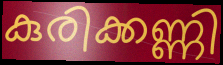
കുരിക്കണ്ണി